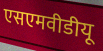
एसएमवीडीयू